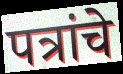
पत्रांचे